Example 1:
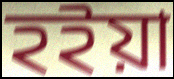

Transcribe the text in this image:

হইয়া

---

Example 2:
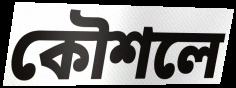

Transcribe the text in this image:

কৌশলে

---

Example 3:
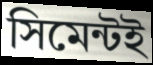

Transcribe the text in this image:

সিমেন্টই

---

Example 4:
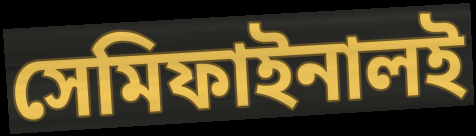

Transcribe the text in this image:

সেমিফাইনালই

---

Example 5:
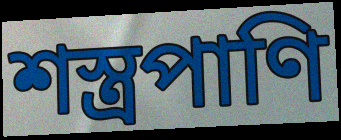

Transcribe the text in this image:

শস্ত্রপাণি